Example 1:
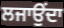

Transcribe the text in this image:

ਲਜਾਉਂਦਾ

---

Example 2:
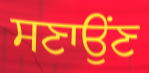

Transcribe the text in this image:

ਸਣਾਉਂਣ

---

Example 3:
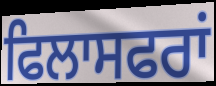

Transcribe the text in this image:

ਫਿਲਾਸਫਰਾਂ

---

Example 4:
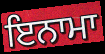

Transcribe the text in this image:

ਇਨਾਮਾ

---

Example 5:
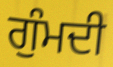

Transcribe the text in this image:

ਗੁੰਮਦੀ